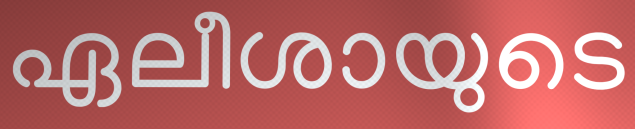
ഏലീശായുടെ